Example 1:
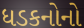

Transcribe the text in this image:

ધડકનોનો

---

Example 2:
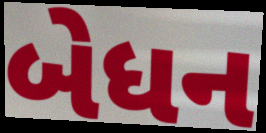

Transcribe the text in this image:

બેધન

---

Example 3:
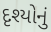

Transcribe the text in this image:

દૃશ્યોનું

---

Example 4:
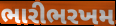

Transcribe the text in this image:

ભારીભરખમ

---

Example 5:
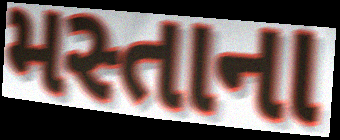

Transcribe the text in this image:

મસ્તાના